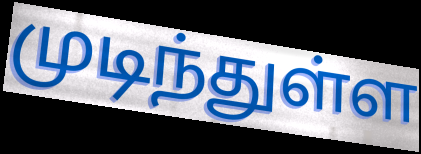
முடிந்துள்ள